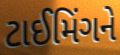
ટાઈમિંગને